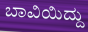
ಬಾವಿಯಿದ್ದು